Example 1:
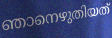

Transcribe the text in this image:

ഞാനെഴുതിയത്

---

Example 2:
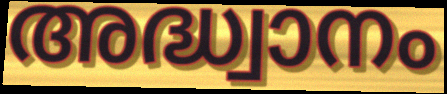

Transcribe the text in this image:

അദ്ധ്വാനം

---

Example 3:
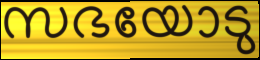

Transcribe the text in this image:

സഭയോടു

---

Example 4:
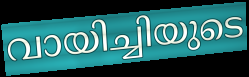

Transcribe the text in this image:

വായിച്ചിയുടെ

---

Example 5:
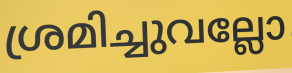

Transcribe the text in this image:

ശ്രമിച്ചുവല്ലോ